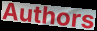
Authors